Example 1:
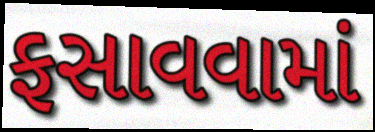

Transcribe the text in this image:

ફસાવવામાં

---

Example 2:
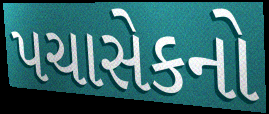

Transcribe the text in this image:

પચાસેકનો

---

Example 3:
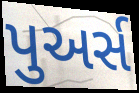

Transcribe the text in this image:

પુઅર્સ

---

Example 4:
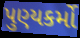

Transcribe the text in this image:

પુણ્યકર્મો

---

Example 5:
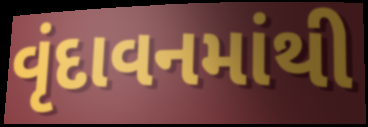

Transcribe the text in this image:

વૃંદાવનમાંથી